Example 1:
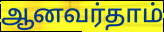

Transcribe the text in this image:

ஆனவர்தாம்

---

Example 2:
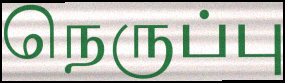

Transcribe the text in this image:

நெருப்பு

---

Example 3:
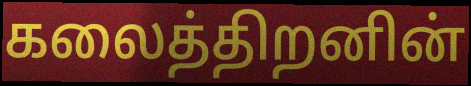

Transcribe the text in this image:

கலைத்திறனின்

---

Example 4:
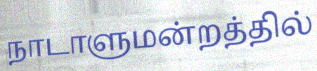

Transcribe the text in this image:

நாடாளுமன்றத்தில்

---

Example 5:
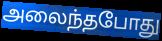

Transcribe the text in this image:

அலைந்தபோது